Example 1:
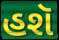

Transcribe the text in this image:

હશૅ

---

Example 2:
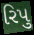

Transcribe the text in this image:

રિપુ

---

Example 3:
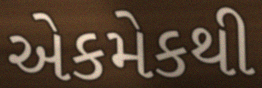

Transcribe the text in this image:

એકમેકથી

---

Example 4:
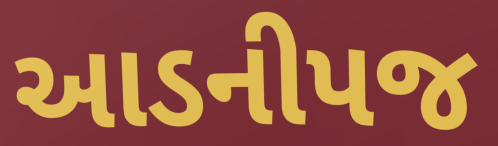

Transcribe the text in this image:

આડનીપજ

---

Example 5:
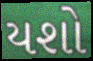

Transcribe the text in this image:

યશો